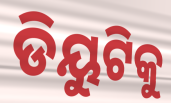
ଡିୟୁଟିକୁ